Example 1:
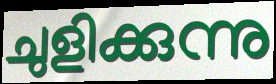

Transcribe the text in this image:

ചുളിക്കുന്നു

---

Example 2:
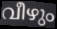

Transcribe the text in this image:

വീഴും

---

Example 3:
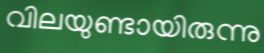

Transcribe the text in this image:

വിലയുണ്ടായിരുന്നു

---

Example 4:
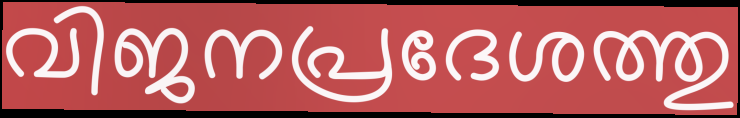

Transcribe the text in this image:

വിജനപ്രദേശത്തു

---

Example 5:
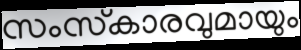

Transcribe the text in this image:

സംസ്‌കാരവുമായും